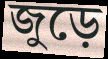
জুড়ে